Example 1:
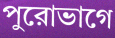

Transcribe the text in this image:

পুরোভাগে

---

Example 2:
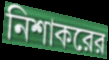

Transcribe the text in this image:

নিশাকরের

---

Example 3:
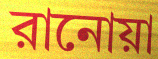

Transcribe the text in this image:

রানোয়া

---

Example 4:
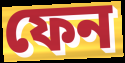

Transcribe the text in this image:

ফেন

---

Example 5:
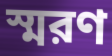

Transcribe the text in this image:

স্মরণ